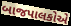
બાજપાલકોએ